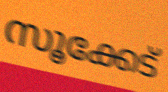
സൂക്കേട്